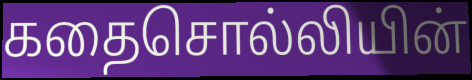
கதைசொல்லியின்